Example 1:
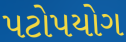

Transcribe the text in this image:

પટોપયોગ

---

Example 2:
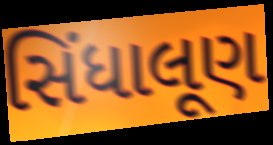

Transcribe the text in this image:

સિંધાલૂણ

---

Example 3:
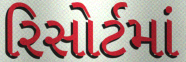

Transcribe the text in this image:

રિસોર્ટમાં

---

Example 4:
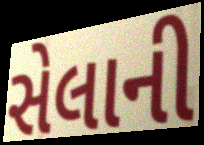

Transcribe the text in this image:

સેલાની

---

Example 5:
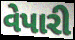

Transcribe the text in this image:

વેપારી